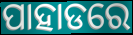
ପାହାଡରେ